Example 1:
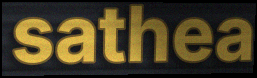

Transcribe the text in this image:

sathea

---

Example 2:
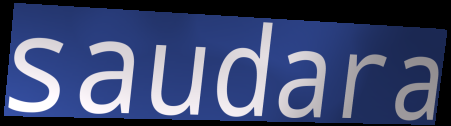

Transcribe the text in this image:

saudara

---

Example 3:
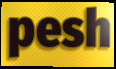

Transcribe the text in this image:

pesh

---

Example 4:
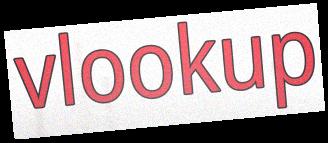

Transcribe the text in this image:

vlookup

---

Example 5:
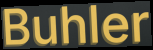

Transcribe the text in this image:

Buhler